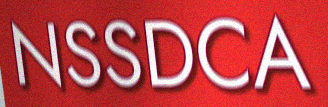
NSSDCA